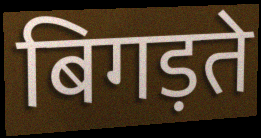
बिगड़ते